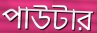
পাউটার